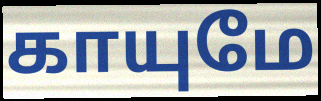
காயுமே